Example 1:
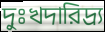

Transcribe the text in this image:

দুঃখদারিদ্র্য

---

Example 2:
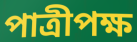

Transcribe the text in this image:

পাত্রীপক্ষ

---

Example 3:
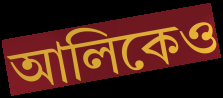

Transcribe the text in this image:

আলিকেও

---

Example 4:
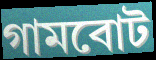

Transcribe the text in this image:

গামবোট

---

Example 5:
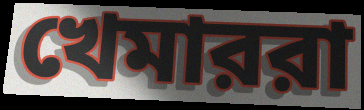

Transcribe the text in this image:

খেমাররা